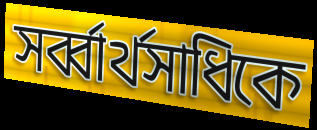
সর্ব্বার্থসাধিকে